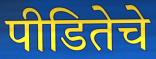
पीडितेचे